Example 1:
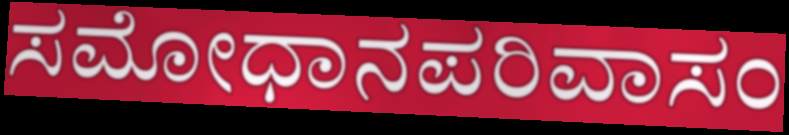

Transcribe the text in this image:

ಸಮೋಧಾನಪರಿವಾಸಂ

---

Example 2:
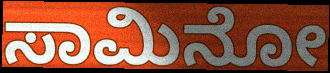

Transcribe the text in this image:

ಸಾಮಿನೋ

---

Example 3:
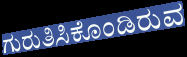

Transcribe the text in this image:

ಗುರುತಿಸಿಕೊಂಡಿರುವ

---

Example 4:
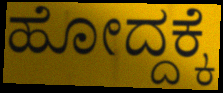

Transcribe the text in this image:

ಹೋದ್ದಕ್ಕೆ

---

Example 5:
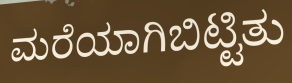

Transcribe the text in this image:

ಮರೆಯಾಗಿಬಿಟ್ಟಿತು